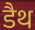
डैथ